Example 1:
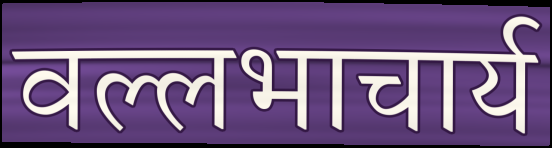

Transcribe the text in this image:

वल्लभाचार्य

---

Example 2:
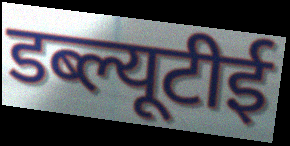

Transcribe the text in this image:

डब्ल्यूटीई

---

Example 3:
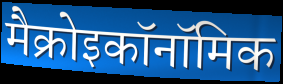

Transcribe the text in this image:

मैक्रोइकॉनॉमिक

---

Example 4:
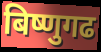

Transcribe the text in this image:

बिष्णुगढ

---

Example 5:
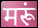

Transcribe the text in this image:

मरूं